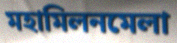
মহামিলনমেলা